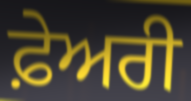
ਫ਼ੇਅਰੀ